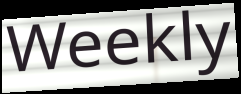
Weekly